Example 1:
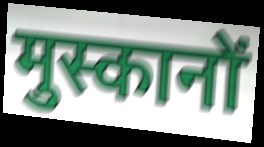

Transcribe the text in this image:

मुस्कानों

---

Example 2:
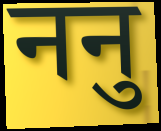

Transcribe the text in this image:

ननु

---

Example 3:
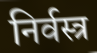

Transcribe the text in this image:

निर्वस्‍त्र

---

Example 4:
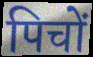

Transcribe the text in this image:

पिचों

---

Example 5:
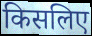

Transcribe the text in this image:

किसलिए